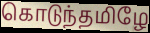
கொடுந்தமிழே